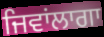
ਜਿਵਾਂਲਾਗਾ